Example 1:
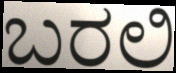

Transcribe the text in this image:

ಬರಲಿ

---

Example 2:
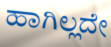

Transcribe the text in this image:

ಹಾಗಿಲ್ಲದೇ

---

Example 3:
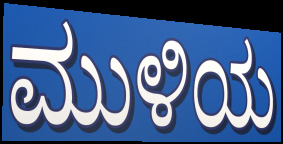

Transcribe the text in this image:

ಮುಳಿಯ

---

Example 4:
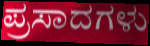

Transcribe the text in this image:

ಪ್ರಸಾದಗಳು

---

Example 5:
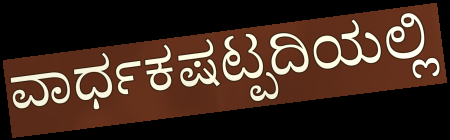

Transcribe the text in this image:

ವಾರ್ಧಕಷಟ್ಪದಿಯಲ್ಲಿ